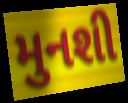
મુનશી